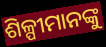
ଶିଳ୍ପୀମାନଙ୍କୁ